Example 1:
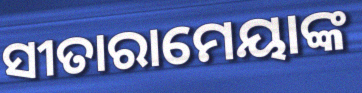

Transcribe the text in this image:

ସୀତାରାମେୟାଙ୍କ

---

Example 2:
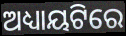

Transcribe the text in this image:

ଅଧ୍ୟାୟଟିରେ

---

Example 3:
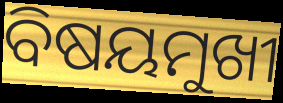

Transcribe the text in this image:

ବିଷୟମୁଖୀ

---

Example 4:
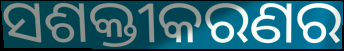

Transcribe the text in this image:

ସଶକ୍ତୀକରଣର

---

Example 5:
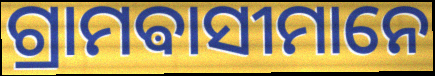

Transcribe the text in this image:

ଗ୍ରାମଵାସୀମାନେ